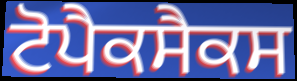
ਟੋਪੈਕਸੈਕਸ